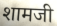
शामजी